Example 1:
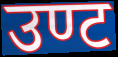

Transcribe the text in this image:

उण्ट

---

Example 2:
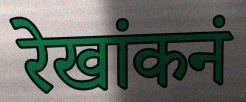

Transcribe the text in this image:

रेखांकनं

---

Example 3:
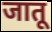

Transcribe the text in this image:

जातू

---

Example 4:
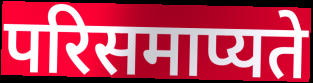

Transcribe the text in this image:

परिसमाप्यते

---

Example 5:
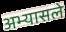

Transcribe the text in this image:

अभ्यासले